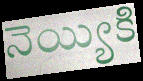
నెయ్యికి